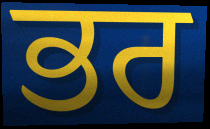
ਭਰ